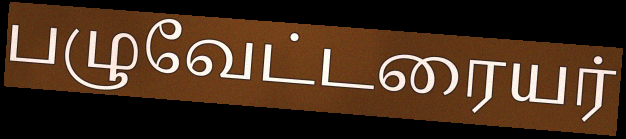
பழுவேட்டரையர்